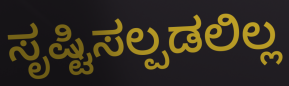
ಸೃಷ್ಟಿಸಲ್ಪಡಲಿಲ್ಲ